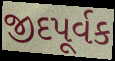
જીદપૂર્વક